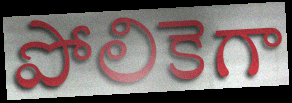
పోలికెగా